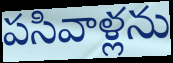
పసివాళ్లను